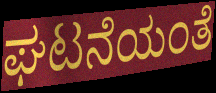
ಘಟನೆಯಂತೆ